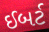
ઈબર્ટ